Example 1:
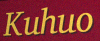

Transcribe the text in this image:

Kuhuo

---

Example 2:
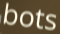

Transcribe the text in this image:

bots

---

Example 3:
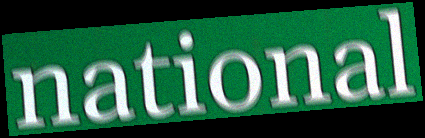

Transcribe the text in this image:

national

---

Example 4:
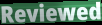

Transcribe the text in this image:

Reviewed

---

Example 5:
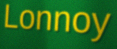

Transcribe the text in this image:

Lonnoy